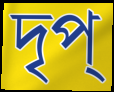
দৃপ্